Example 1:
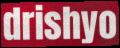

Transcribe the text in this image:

drishyo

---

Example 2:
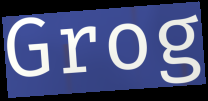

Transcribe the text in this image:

Grog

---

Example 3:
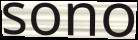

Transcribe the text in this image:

sono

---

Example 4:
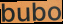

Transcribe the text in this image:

bubo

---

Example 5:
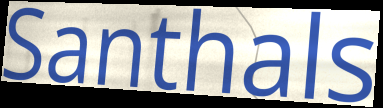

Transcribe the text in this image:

Santhals